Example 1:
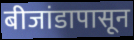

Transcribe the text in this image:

बीजांडापासून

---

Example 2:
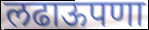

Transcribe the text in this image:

लढाऊपणा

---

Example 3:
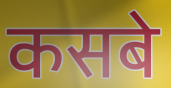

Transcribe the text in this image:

कसबे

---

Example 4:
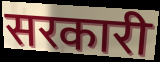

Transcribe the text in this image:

सरकारी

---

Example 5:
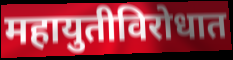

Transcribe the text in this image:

महायुतीविरोधात